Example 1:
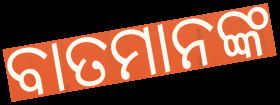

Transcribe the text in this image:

ବାତମାନଙ୍କ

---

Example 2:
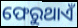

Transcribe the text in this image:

ଫେରୁଥାଏଁ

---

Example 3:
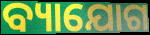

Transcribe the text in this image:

ବ୍ୟାଯୋଗ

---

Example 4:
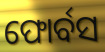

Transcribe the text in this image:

ଫୋର୍ବସ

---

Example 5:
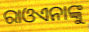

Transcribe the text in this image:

ରାଓଏନାଙ୍କୁ